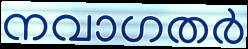
നവാഗതർ